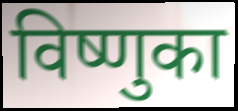
विष्णुका